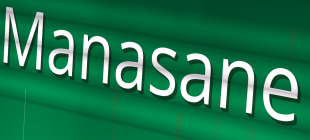
Manasane